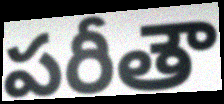
పరీతౌ